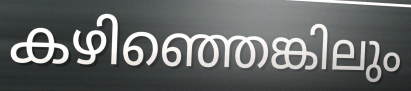
കഴിഞ്ഞെങ്കിലും